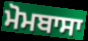
ਮੋਮਬਾਸਾ